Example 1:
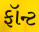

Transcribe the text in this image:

ફૉન્ટ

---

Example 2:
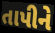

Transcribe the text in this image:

તાપીને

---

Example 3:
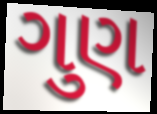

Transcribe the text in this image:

ગુણ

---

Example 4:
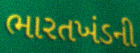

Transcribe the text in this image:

ભારતખંડની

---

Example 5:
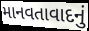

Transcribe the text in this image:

માનવતાવાદનું